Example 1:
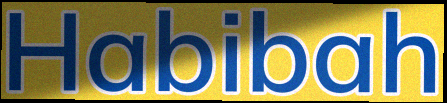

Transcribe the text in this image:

Habibah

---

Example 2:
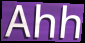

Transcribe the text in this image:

Ahh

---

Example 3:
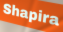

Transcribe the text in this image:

Shapira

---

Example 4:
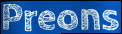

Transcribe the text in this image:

Preons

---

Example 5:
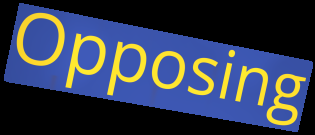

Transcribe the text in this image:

Opposing